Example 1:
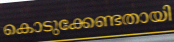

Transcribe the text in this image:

കൊടുക്കേണ്ടതായി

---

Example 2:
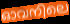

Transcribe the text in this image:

ഓവനിലെ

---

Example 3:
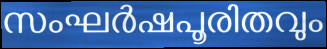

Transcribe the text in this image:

സംഘർഷപൂരിതവും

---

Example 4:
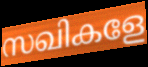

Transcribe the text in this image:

സഖികളേ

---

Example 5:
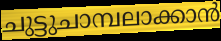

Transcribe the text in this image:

ചുട്ടുചാമ്പലാക്കാൻ